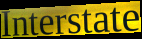
Interstate